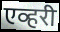
एव्हरी